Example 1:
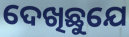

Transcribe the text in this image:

ଦେଖିଛୁଯେ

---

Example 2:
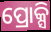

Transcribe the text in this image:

ପ୍ରୋକ୍ସି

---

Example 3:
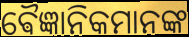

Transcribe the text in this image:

ଵୈଜ୍ଞାନିକମାନଙ୍କ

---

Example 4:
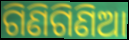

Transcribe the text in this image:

ଗିଣିଗିଣିଆ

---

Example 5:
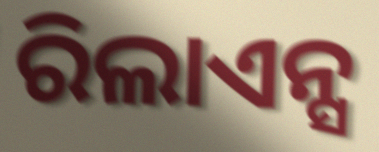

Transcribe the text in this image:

ରିଲାଏନ୍ସ